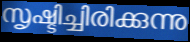
സൃഷ്ടിച്ചിരിക്കുന്നു